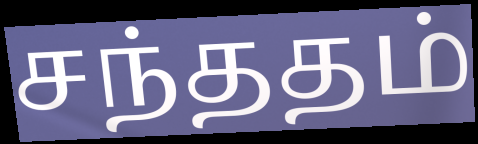
சந்ததம்